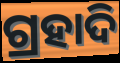
ଗ୍ରହାଦି